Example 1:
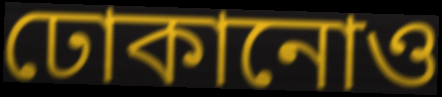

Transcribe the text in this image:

ঢোকানোও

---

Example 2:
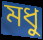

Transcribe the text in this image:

মধু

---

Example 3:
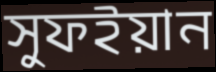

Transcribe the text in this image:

সুফইয়ান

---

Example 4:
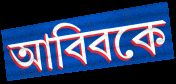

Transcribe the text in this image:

আবিবকে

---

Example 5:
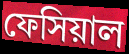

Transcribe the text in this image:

ফেসিয়াল